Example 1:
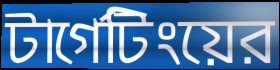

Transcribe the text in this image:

টার্গেটিংয়ের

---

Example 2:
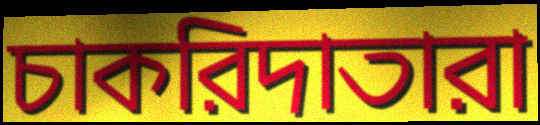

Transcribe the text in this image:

চাকরিদাতারা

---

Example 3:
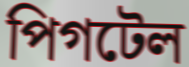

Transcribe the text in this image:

পিগটেল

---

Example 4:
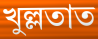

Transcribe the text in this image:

খুল্লতাত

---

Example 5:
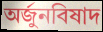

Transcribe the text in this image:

অর্জুনবিষাদ